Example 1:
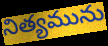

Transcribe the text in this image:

నిత్యమును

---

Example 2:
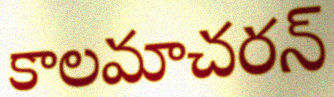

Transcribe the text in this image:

కాలమాచరన్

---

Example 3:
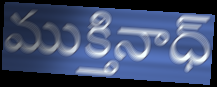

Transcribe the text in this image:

ముక్తినాధ్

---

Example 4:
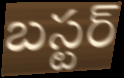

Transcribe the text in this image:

బస్టర్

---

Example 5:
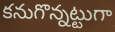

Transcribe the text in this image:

కనుగొన్నట్టుగా